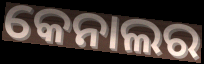
କେନାଲର